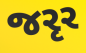
જરૃર